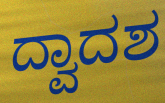
ದ್ವಾದಶ